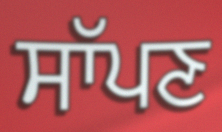
ਸਾੱਪਣ